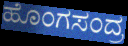
ಹೊಂಗಸಂದ್ರ